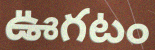
ఊగటం